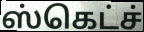
ஸ்கெட்ச்